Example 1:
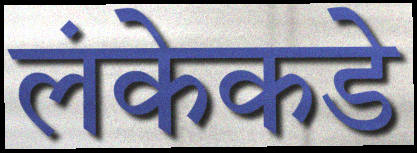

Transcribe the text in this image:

लंकेकडे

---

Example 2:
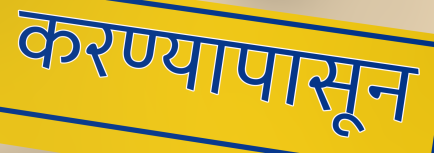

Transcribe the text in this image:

करण्यापासून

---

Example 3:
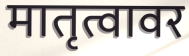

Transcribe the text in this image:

मातृत्वावर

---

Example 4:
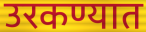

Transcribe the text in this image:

उरकण्यात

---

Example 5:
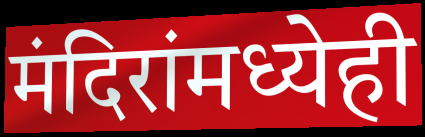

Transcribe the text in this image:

मंदिरांमध्येही